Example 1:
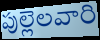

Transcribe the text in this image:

పుల్లెలవారి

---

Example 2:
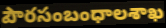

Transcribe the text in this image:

పౌరసంబంధాలశాఖ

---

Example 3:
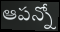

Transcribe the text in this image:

ఆపన్నో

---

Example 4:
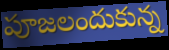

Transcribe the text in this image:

పూజలందుకున్న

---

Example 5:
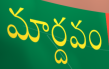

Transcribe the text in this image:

మార్దవం